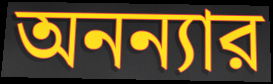
অনন্যার